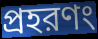
প্রহরণং